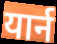
यार्न